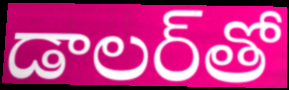
డాలర్‌తో